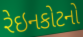
રેઇનકોટનો